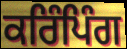
ਕਰਿੰਪਿੰਗ